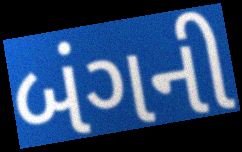
બંગની